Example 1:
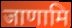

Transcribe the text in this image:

जाणामि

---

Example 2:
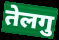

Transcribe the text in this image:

तेलगु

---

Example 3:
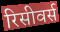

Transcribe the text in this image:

रिसीवर्स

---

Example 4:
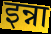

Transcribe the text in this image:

इन्ना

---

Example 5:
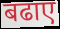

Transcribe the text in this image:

बढाए